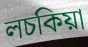
লচকিয়া